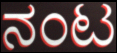
ನಂಟ